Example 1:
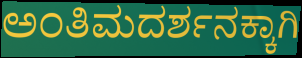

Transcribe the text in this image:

ಅಂತಿಮದರ್ಶನಕ್ಕಾಗಿ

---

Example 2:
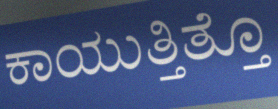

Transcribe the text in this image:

ಕಾಯುತ್ತಿತ್ತೊ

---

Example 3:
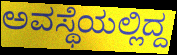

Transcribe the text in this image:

ಅವಸ್ಥೆಯಲ್ಲಿದ್ದ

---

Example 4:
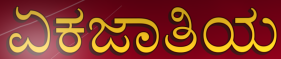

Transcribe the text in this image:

ಏಕಜಾತಿಯ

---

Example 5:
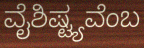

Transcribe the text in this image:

ವೈಶಿಷ್ಟ್ಯವೆಂಬ